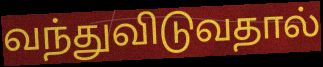
வந்துவிடுவதால்